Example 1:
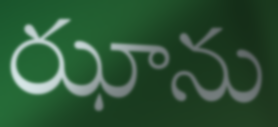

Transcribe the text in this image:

ఝాను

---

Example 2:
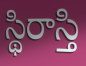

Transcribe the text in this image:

స్థిరాస్తి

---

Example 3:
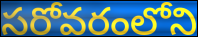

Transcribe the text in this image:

సరోవరంలోని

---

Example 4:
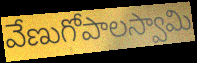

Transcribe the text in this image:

వేణుగోపాలస్వామి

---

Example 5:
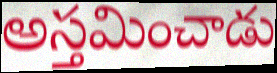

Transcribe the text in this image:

అస్తమించాడు